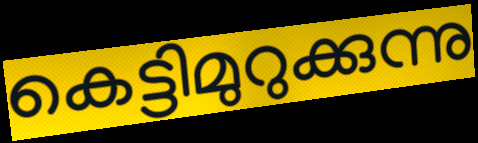
കെട്ടിമുറുക്കുന്നു